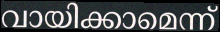
വായിക്കാമെന്ന്